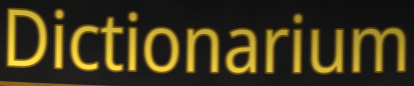
Dictionarium